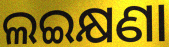
ଲଇକ୍ଷଣା